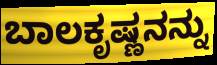
ಬಾಲಕೃಷ್ಣನನ್ನು